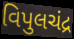
વિપુલચંદ્ર